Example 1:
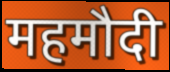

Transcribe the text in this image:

महमौदी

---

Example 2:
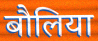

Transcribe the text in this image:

बौलिया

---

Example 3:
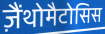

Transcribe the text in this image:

ज़ैंथोमैटोसिस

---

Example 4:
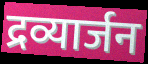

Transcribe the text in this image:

द्रव्यार्जन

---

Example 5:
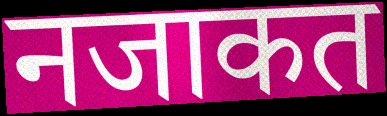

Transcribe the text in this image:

नजाकत